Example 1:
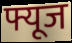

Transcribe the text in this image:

फ्यूज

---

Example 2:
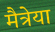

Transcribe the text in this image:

मैत्रेया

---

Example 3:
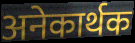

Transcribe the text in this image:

अनेकार्थक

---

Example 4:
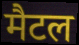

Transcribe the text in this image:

मैटल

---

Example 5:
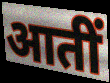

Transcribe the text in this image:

आतीं